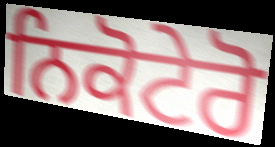
ਨਿਕੋਟੇਰੋ